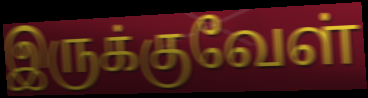
இருக்குவேள்